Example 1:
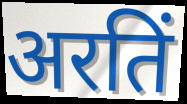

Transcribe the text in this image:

अरतिं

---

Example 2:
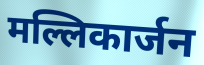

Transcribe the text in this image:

मल्लिकार्जन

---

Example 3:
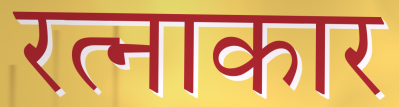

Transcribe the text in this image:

रत्नाकार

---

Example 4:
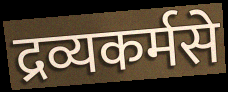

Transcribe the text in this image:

द्रव्यकर्मसे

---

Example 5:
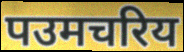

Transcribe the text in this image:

पउमचरिय